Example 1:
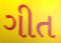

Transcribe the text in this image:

ગીત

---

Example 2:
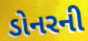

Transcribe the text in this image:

ડોનરની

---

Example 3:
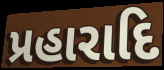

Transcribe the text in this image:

પ્રહારાદિ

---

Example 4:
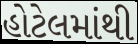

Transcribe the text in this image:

હોટેલમાંથી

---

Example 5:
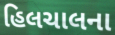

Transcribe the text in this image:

હિલચાલના